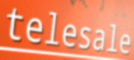
telesale